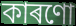
কাৰণো